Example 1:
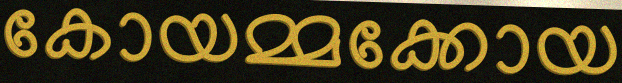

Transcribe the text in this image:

കോയമ്മക്കോയ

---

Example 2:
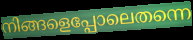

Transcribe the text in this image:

നിങ്ങളെപ്പോലെതന്നെ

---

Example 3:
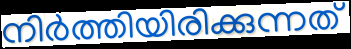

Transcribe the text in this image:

നിർത്തിയിരിക്കുന്നത്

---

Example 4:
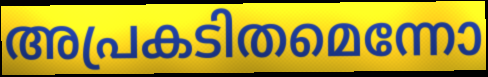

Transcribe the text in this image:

അപ്രകടിതമെന്നോ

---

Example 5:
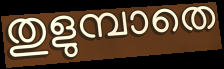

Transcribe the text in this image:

തുളുമ്പാതെ